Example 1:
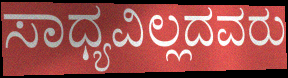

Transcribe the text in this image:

ಸಾಧ್ಯವಿಲ್ಲದವರು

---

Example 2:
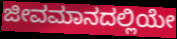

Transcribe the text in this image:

ಜೀವಮಾನದಲ್ಲಿಯೇ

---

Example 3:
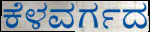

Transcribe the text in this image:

ಕೆಳವರ್ಗದ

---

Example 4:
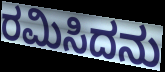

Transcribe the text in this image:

ರಮಿಸಿದನು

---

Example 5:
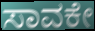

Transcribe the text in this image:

ಸಾವಕೇ